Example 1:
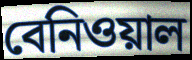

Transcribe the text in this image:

বেনিওয়াল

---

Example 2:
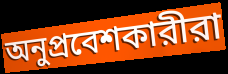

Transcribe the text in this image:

অনুপ্রবেশকারীরা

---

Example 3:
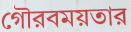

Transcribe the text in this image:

গৌরবময়তার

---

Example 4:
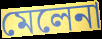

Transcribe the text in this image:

মেলেনা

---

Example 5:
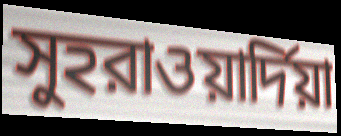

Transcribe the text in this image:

সুহরাওয়ার্দিয়া